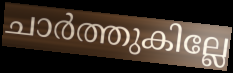
ചാർത്തുകില്ലേ